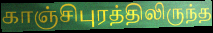
காஞ்சிபுரத்திலிருந்த